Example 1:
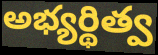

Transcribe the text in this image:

అభ్యర్థిత్వ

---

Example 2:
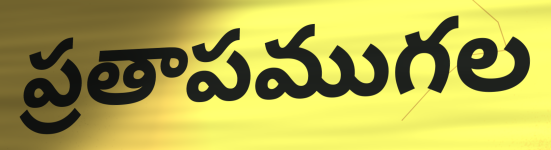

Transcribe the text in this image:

ప్రతాపముగల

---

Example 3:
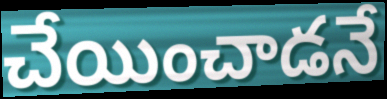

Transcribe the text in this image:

చేయించాడనే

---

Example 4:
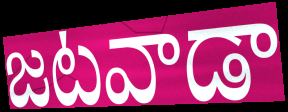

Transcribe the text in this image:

జటవాడా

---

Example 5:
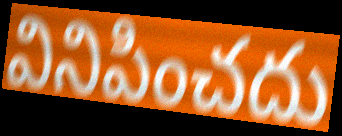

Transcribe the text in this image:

వినిపించదు